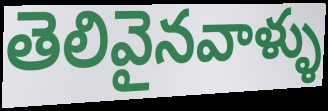
తెలివైనవాళ్ళు